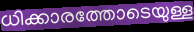
ധിക്കാരത്തോടെയുള്ള